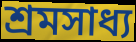
শ্ৰমসাধ্য